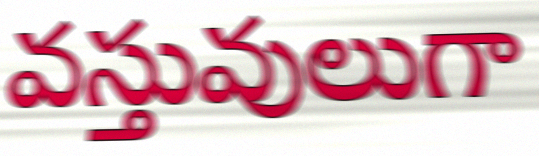
వస్తువులుగా